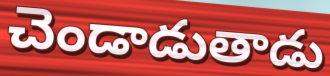
చెండాడుతాడు